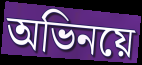
অভিনয়ে